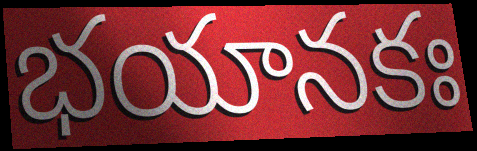
భయానకః